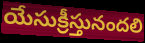
యేసుక్రీస్తునందలి